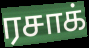
ரசாக்